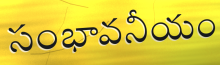
సంభావనీయం